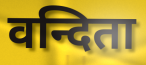
वन्दिता